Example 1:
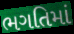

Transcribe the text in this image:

ભગતિમાં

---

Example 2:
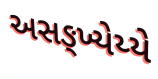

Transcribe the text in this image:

અસઙ્ખ્યેય્યે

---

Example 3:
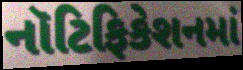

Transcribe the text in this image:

નૉટિફિકેશનમાં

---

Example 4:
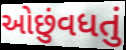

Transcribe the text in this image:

ઓછુંવધતું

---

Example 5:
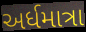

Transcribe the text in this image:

અર્ધમાત્રા